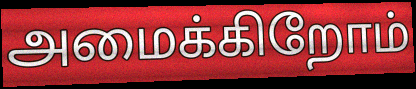
அமைக்கிறோம்